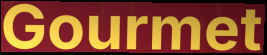
Gourmet